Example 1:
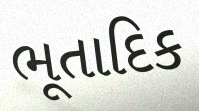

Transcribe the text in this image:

ભૂતાદિક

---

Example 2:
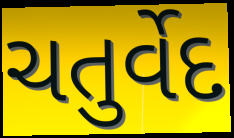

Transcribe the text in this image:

ચતુર્વેદ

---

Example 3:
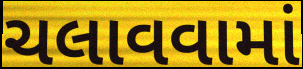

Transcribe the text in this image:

ચલાવવામાં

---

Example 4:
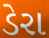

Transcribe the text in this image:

ડેરા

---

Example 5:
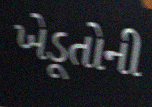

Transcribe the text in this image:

ખેડૂતોની